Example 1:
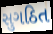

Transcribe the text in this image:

સુગઠિત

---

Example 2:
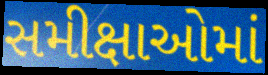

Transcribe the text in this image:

સમીક્ષાઓમાં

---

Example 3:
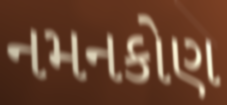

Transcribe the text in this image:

નમનકોણ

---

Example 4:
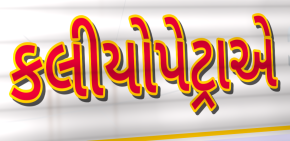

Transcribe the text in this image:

કલીયોપેટ્રાએ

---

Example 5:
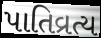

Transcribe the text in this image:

પાતિવ્રત્ય